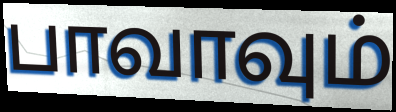
பாவாவும்